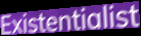
Existentialist